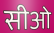
सीओ